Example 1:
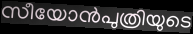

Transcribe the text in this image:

സീയോൻപുത്രിയുടെ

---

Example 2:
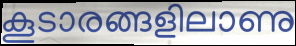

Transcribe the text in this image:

കൂടാരങ്ങളിലാണു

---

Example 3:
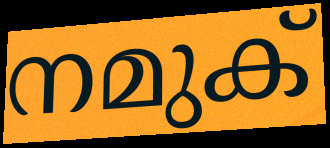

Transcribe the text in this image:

നമുക്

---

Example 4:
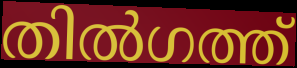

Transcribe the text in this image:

തിൽഗത്ത്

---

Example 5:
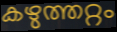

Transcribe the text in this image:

കഴുത്തറ്റം